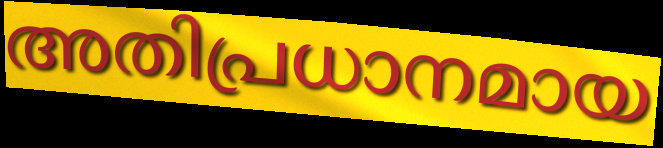
അതിപ്രധാനമായ